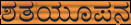
ಶತಯೂಪನ